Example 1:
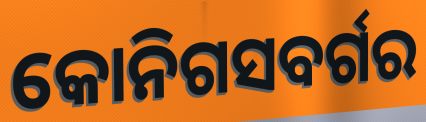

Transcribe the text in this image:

କୋନିଗସବର୍ଗର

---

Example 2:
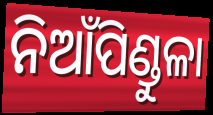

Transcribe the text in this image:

ନିଆଁପିଣ୍ଡୁଳା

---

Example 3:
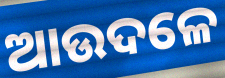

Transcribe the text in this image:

ଆଉଦଳେ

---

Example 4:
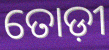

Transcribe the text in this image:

ତୋଡ଼ୀ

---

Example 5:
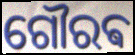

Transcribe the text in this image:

ଗୌରଵ